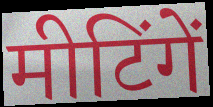
मीटिंगें